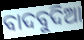
ବାଦବୁଦିଆ